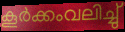
കൂർക്കംവലിച്ചു്